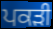
ਪਕੜੀ